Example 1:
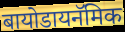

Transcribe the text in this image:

बायोडायनॅमिक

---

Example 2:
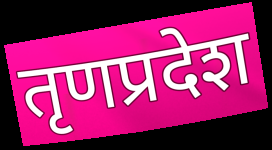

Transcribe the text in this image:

तृणप्रदेश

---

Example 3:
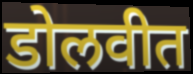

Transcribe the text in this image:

डोलवीत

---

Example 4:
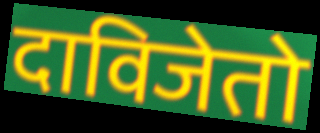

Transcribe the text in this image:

दाविजेतो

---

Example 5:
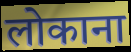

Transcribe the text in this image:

लोकाना